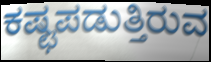
ಕಷ್ಟಪಡುತ್ತಿರುವ